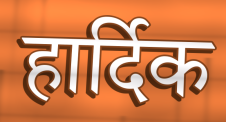
हार्दिक